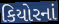
કિયોરનાં